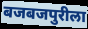
बजबजपुरीला